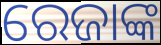
ରେଜାଙ୍କ